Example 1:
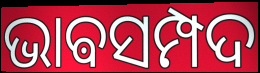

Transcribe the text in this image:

ଭାଵସମ୍ପଦ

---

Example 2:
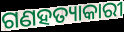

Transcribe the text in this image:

ଗଣହତ୍ୟାକାରୀ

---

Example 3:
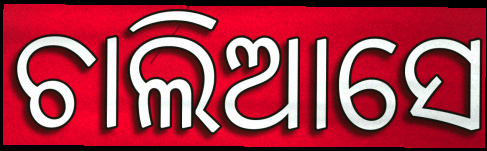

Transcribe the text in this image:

ଚାଲିଆସେ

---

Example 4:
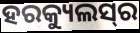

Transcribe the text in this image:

ହରକ୍ୟୁଲସ୍‍ର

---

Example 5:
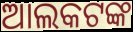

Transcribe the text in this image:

ଆଲକଟଙ୍କ